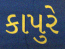
કાપુરે